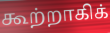
கூற்றாகிக்